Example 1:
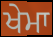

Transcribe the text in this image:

ਖੇਮਾ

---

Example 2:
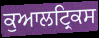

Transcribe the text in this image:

ਕੁਆਲਟ੍ਰਿਕਸ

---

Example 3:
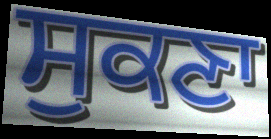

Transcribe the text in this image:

ਸੁਕਣਾ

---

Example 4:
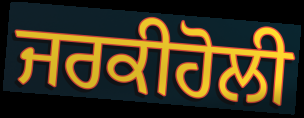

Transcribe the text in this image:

ਜਰਕੀਹੋਲੀ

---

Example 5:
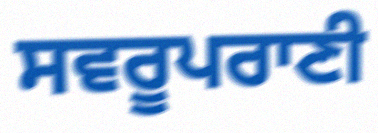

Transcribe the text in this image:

ਸਵਰੂਪਰਾਣੀ